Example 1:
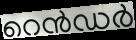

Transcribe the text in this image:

റെൻഡർ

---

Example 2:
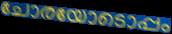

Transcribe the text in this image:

ചോരയോടൊപ്പം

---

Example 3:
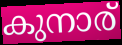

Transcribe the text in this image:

കുനാര്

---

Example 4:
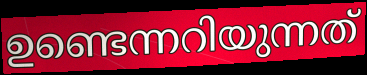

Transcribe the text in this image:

ഉണ്ടെന്നറിയുന്നത്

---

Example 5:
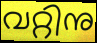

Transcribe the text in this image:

വറ്റിനു